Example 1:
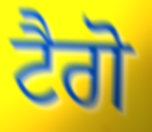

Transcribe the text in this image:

ਟੈਗੋ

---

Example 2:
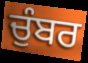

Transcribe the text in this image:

ਚੁੰਬਰ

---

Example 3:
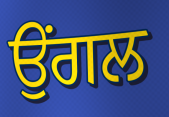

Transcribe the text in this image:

ਉੰਗਲ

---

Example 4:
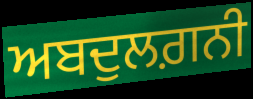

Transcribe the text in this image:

ਅਬਦੁਲਗ਼ਨੀ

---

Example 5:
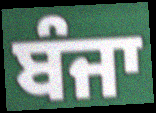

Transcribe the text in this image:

ਬੰਜਾ